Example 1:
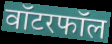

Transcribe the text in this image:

वॉटरफॉल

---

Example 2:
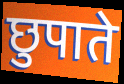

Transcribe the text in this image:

छुपाते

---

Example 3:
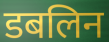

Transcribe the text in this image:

डबलिन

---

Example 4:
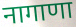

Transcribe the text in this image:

नागाणा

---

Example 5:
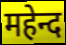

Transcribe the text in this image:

महेन्द